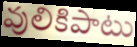
వులికిపాటు